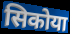
सिकोया